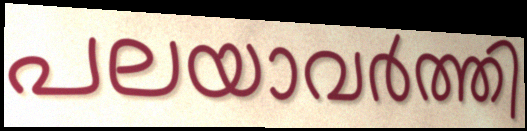
പലയാവർത്തി